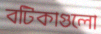
বটিকাগুলো